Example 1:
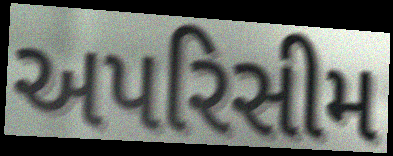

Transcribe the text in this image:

અપરિસીમ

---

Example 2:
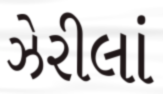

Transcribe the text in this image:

ઝેરીલાં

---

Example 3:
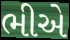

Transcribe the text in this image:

ભીએ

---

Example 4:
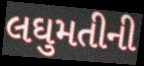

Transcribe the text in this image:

લઘુમતીની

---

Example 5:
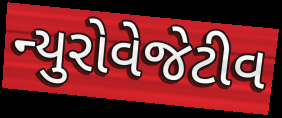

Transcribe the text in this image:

ન્યુરોવેજેટીવ